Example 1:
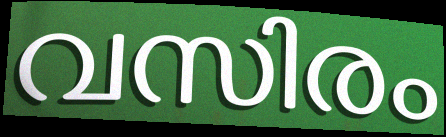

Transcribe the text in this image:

വസിരം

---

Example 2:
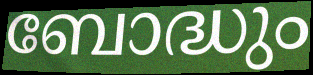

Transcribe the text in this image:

ബോദ്ധും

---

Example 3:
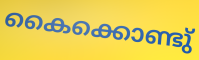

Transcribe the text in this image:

കൈക്കൊണ്ടു്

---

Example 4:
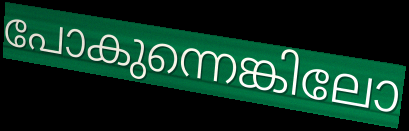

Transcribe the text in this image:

പോകുന്നെങ്കിലോ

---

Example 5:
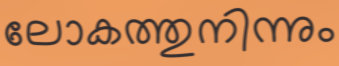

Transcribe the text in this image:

ലോകത്തുനിന്നും